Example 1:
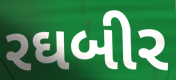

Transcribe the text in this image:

રઘબીર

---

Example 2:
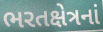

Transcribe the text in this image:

ભરતક્ષેત્રનાં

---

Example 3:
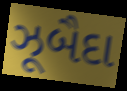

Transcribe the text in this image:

ઝૂબૈદા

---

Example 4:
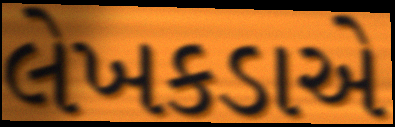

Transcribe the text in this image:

લેખકડાએ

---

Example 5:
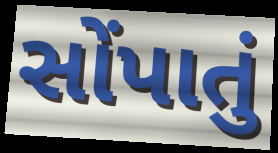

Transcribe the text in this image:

સોંપાતું